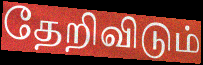
தேறிவிடும்